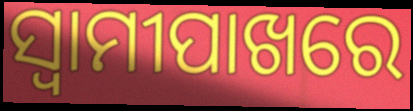
ସ୍ୱାମୀପାଖରେ